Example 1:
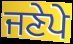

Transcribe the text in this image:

ਜਣੇਪੇ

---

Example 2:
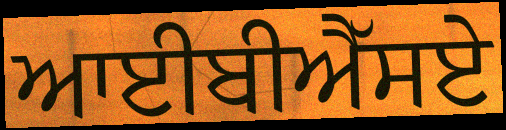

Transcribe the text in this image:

ਆਈਬੀਐੱਸਏ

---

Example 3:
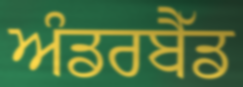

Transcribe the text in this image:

ਅੰਡਰਬੈੱਡ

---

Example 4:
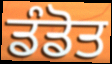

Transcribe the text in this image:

ਡੰਡੋਤ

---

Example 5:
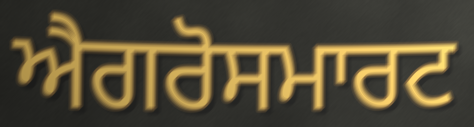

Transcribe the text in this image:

ਐਗਰੋਸਮਾਰਟ